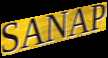
SANAP